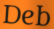
Deb